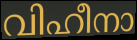
വിഹീനാ